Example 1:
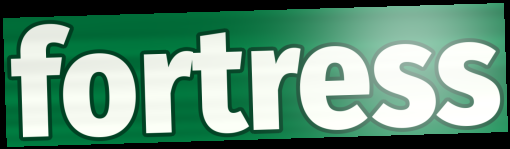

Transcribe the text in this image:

fortress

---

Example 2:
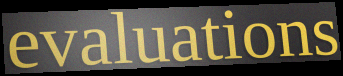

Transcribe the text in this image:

evaluations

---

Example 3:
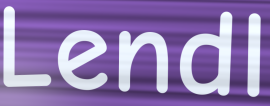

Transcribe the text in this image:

Lendl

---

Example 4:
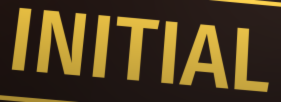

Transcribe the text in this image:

INITIAL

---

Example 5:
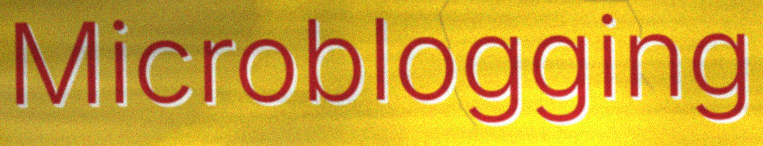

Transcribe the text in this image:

Microblogging